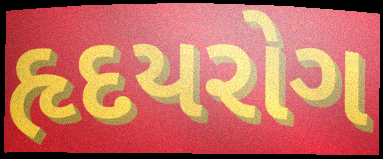
હૃદયરોગ